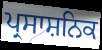
ਪ੍ਰਸਾਸ਼ਨਿਕ